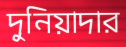
দুনিয়াদার